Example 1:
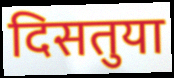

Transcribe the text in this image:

दिसतुया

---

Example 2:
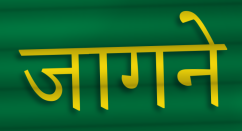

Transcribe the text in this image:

जागने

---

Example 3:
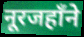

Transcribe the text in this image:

नूरजहाँने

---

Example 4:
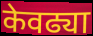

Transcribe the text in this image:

केवढ्या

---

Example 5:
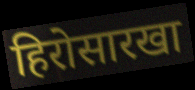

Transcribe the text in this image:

हिरोसारखा